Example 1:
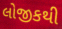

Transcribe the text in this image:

લોજીકથી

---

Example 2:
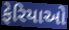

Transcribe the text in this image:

ફેરિયાઓ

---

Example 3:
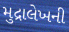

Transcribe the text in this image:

મુદ્રાલેખની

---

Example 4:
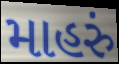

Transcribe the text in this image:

માહરું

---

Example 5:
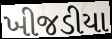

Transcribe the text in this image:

ખીજડીયા